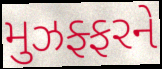
મુઝફ્ફરને